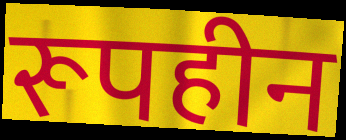
रूपहीन